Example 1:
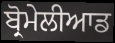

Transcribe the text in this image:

ਬ੍ਰੋਮੇਲੀਆਡ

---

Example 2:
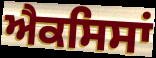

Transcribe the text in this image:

ਐਕਸਿਸਾਂ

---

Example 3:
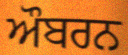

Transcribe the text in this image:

ਔਬਰਨ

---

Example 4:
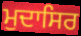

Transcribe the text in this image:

ਮੁਦਾਸਿਰ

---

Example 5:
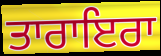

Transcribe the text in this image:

ਤਾਰਾਇਰਾ